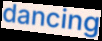
dancing